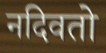
नदिवतो